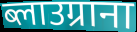
ब्लाउग्राना